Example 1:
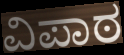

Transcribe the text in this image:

ವಿಪಾಠ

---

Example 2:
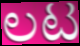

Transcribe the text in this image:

ಲಟ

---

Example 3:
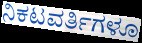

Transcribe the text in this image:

ನಿಕಟವರ್ತಿಗಳೂ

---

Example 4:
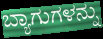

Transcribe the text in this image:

ಬ್ಯಾಗುಗಳನ್ನು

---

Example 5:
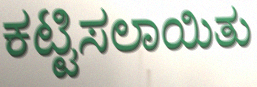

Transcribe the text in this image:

ಕಟ್ಟಿಸಲಾಯಿತು